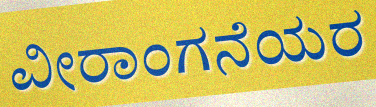
ವೀರಾಂಗನೆಯರ